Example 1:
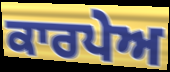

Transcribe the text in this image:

ਕਾਰਪੇਅ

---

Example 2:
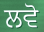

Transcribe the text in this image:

ਲਵੋ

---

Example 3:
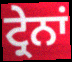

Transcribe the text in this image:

ਟ੍ਰੇਨਾਂ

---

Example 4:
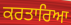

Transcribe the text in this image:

ਕਰਤਾਰਿਆ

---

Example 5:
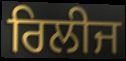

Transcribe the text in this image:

ਰਿਲੀਜ